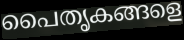
പൈതൃകങ്ങളെ